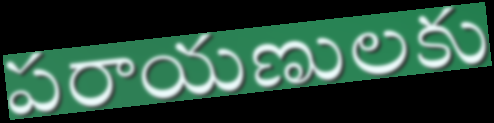
పరాయణులకు